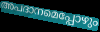
അപദാനമെപ്പോഴും